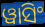
ୱାସିଂ